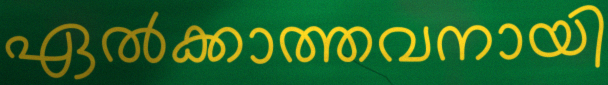
ഏൽക്കാത്തവനായി